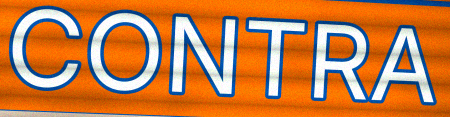
CONTRA